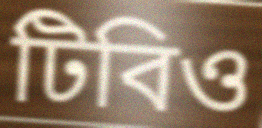
টিবিও